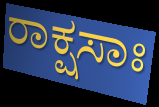
ರಾಕ್ಷಸಾಃ